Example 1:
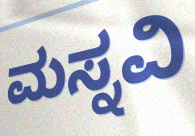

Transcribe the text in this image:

ಮಸ್ನವಿ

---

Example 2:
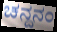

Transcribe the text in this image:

ಚನ್ದನಂ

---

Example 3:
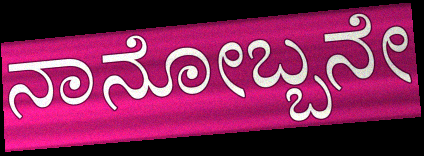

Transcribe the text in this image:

ನಾನೋಬ್ಬನೇ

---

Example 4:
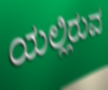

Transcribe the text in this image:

ಯಲ್ಲಿರುವ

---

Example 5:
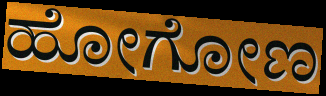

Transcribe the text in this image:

ಹೋಗೋಣ